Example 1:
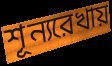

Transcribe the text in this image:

শূন্যরেখায়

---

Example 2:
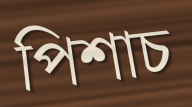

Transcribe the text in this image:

পিশাচ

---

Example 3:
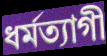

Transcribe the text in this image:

ধর্মত্যাগী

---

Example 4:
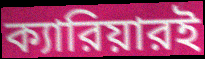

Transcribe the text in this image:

ক্যারিয়ারই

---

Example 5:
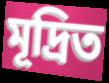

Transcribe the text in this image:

মূদ্রিত